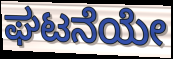
ಘಟನೆಯೇ